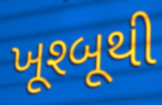
ખૂશ્બૂથી